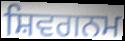
ਸ਼ਿਵਗਨਮ